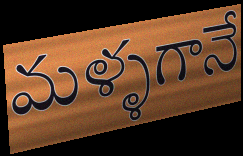
మళ్ళగానే